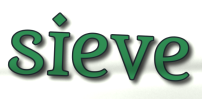
sieve